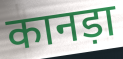
कानड़ा